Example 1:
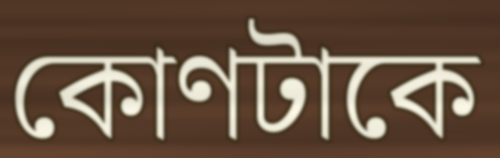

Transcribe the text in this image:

কোণটাকে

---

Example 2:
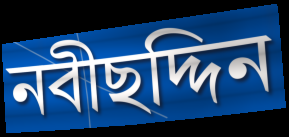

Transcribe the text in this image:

নবীছদ্দিন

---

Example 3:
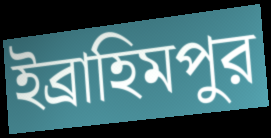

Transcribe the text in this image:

ইব্রাহিমপুর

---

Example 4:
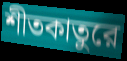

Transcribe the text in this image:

শীতকাতুরে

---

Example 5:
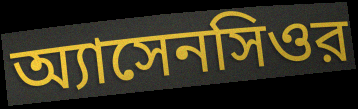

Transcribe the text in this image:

অ্যাসেনসিওর